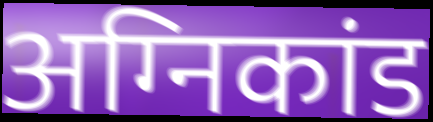
अग्‍निकांड